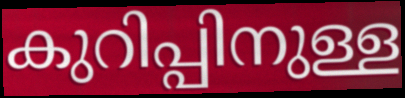
കുറിപ്പിനുള്ള